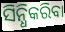
ସିନ୍ଧିକରିବା